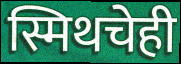
स्मिथचेही